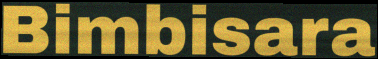
Bimbisara